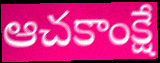
ఆచకాంక్షే